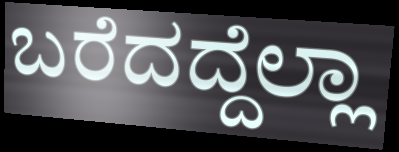
ಬರೆದದ್ದೆಲ್ಲಾ